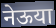
नेऊया